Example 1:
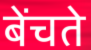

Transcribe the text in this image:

बेंचते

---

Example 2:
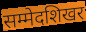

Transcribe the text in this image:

सम्मेदशिखर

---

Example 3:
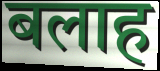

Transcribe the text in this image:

बलाह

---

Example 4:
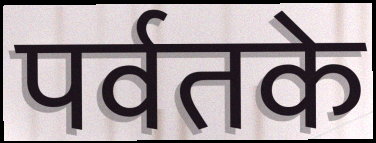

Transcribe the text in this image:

पर्वतके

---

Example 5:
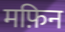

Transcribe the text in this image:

मफ़िन